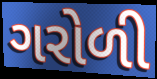
ગરોળી